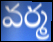
వర్మ